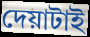
দেয়াটাই